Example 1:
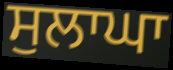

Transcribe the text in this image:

ਸੁਲਾਘਾ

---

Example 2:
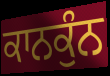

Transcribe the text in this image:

ਕਾਨਕੁੰਨ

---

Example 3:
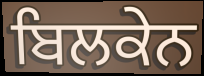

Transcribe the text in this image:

ਬਿਲਕੇਨ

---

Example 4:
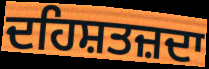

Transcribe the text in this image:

ਦਹਿਸ਼ਤਜ਼ਦਾ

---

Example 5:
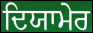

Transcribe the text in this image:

ਦਿਯਾਮੇਰ